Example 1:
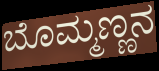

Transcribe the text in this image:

ಬೊಮ್ಮಣ್ಣನ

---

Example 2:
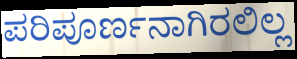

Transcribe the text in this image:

ಪರಿಪೂರ್ಣನಾಗಿರಲಿಲ್ಲ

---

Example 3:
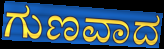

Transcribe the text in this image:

ಗುಣವಾದ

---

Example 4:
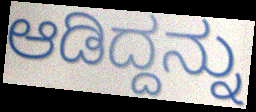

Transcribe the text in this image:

ಆಡಿದ್ದನ್ನು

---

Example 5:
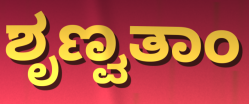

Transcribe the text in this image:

ಶೃಣ್ವತಾಂ